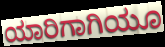
ಯಾರಿಗಾಗಿಯೂ